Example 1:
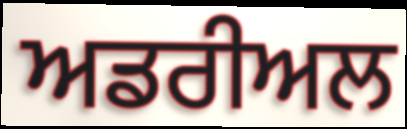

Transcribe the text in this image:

ਅਡਰੀਅਲ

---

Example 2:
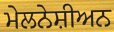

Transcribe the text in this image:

ਮੇਲਨੇਸ਼ੀਅਨ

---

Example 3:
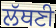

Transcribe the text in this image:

ਲੱਥਣੀ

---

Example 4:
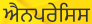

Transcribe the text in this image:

ਐਨਪਰੇਸਿਸ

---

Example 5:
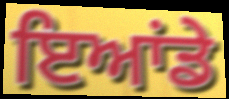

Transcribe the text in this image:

ਇਆਂਡੇ